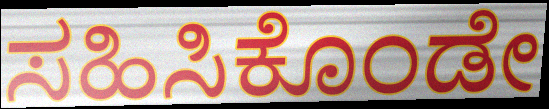
ಸಹಿಸಿಕೊಂಡೇ